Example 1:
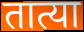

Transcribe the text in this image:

तात्या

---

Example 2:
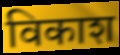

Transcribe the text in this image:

विकाश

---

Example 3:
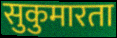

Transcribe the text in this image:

सुकुमारता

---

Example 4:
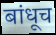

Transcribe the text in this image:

बांधूच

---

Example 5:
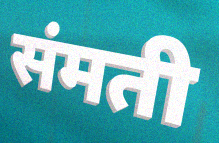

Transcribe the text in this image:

संमती